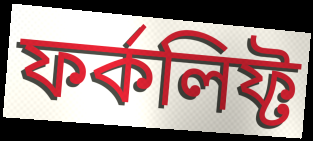
ফর্কলিফ্ট